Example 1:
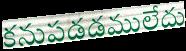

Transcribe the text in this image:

కనుపడడములేదు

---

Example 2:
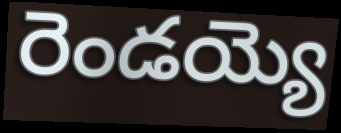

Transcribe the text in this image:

రెండయ్యె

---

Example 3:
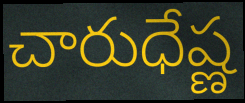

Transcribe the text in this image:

చారుధేష్ణ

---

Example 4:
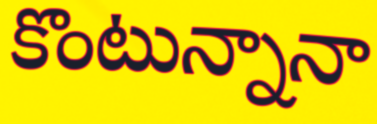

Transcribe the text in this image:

కొంటున్నానా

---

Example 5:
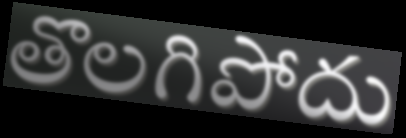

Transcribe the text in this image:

తొలగిపోదు